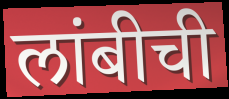
लांबीची